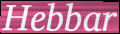
Hebbar